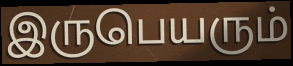
இருபெயரும்